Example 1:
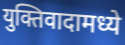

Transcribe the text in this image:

युक्तिवादामध्ये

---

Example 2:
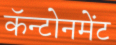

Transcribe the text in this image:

कॅन्टोनमेंट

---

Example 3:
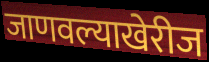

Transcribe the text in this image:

जाणवल्याखेरीज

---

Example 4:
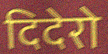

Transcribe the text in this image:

दिदेरो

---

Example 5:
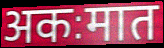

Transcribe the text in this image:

अकःमात